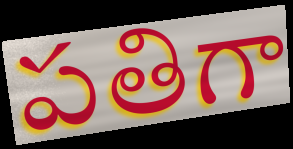
పతిగా